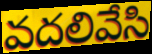
వదలివేసి